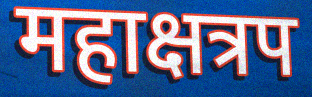
महाक्षत्रप